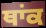
ਥਾਂਕ